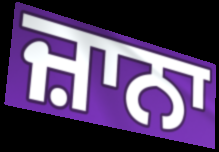
ਜ਼ਾਨਾ